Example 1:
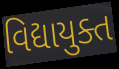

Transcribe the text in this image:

વિદ્યાયુક્ત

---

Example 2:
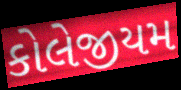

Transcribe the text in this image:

કોલેજીયમ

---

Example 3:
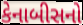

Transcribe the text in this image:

કેનાબીસનો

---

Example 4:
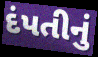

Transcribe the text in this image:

દંપતીનું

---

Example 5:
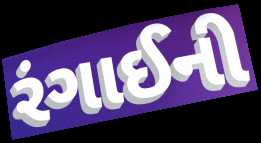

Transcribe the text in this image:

રંગાઈની